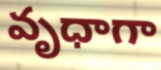
వృధాగా